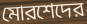
মোরশেদের